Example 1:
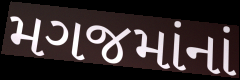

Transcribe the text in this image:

મગજમાંનાં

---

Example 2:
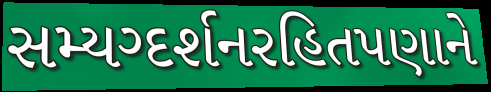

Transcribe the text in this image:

સમ્યગ્દર્શનરહિતપણાને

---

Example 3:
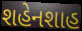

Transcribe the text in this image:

શહેનશાહ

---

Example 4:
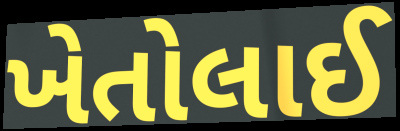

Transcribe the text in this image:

ખેતોલાઈ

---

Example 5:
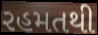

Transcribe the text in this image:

રહમતથી